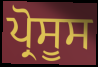
ਪ੍ਰੋਸੂਸ